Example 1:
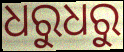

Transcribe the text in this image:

ଧରୁଧରୁ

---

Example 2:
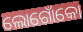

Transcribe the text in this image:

ଲୋଗୋଁକୋ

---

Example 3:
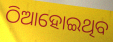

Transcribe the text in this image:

ଠିଆହୋଇଥିବ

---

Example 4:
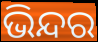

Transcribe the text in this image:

ଭିନ୍ଦର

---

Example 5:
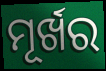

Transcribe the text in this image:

ମୂର୍ଖର